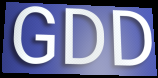
GDD